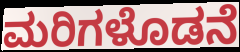
ಮರಿಗಳೊಡನೆ